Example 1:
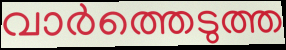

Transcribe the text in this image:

വാർത്തെടുത്ത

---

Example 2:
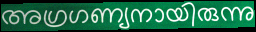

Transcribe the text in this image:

അഗ്രഗണ്യനായിരുന്നു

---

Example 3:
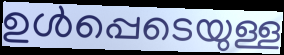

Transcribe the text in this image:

ഉൾപ്പെടെയുള്ള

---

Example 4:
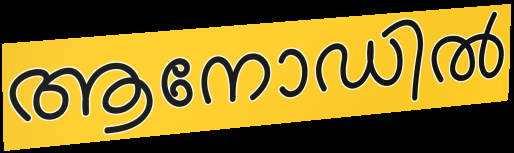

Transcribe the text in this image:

ആനോഡിൽ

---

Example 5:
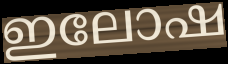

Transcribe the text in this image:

ഇലോഷ